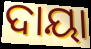
ଦାୟା